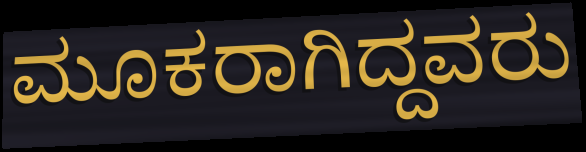
ಮೂಕರಾಗಿದ್ದವರು